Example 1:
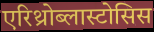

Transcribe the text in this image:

एरिथ्रोब्लास्टोसिस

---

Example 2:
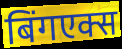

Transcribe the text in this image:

बिंगएक्स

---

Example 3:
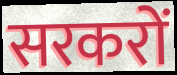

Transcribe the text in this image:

सरकरों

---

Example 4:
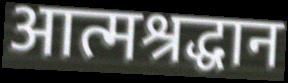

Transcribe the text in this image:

आत्मश्रद्धान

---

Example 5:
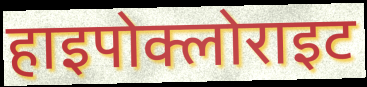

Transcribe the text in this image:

हाइपोक्लोराइट